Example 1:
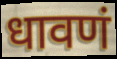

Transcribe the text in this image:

धावणं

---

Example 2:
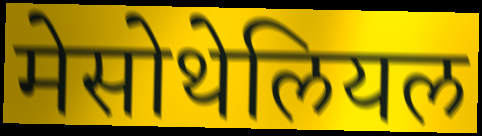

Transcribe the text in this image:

मेसोथेलियल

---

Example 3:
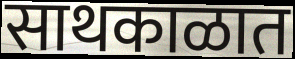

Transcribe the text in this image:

साथकाळात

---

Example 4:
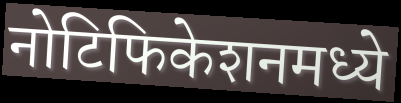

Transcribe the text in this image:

नोटिफिकेशनमध्ये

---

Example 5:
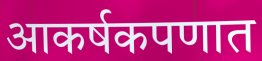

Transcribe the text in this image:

आकर्षकपणात